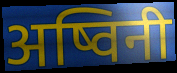
अष्विनी